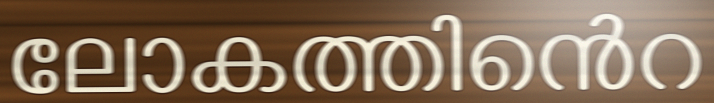
ലോകത്തിൻെറ